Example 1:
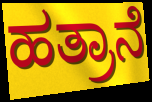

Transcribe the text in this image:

ಹತ್ರಾನೆ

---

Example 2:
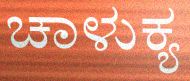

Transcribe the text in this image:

ಚಾಳುಕ್ಯ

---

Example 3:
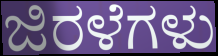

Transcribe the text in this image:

ಜಿರಳೆಗಳು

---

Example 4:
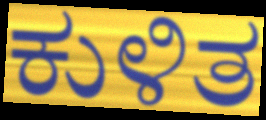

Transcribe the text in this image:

ಕುಳಿತ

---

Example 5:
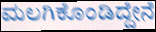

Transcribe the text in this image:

ಮಲಗಿಕೊಂಡಿದ್ದೇನೆ